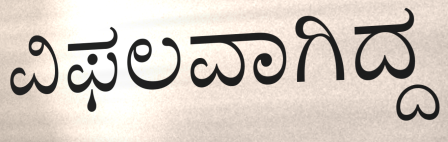
ವಿಫಲವಾಗಿದ್ದ